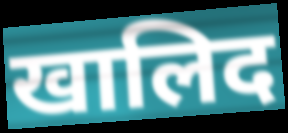
खालिद